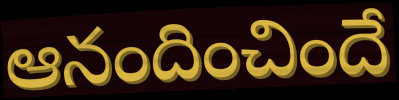
ఆనందించిందే